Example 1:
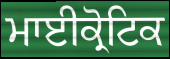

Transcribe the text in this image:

ਮਾਈਕ੍ਰੋਟਿਕ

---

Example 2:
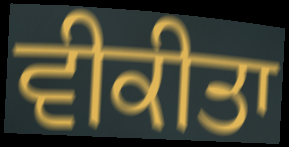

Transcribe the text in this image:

ਵੀਕੀਤਾ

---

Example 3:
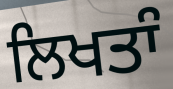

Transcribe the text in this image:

ਲਿਖਤਾੰ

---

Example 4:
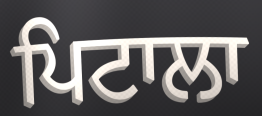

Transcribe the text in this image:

ਪਿਟਾਲਾ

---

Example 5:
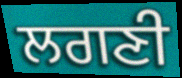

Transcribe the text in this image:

ਲਗਣੀ